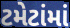
ટમેટાંમાં